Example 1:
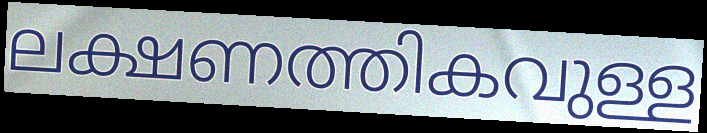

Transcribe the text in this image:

ലക്ഷണത്തികവുള്ള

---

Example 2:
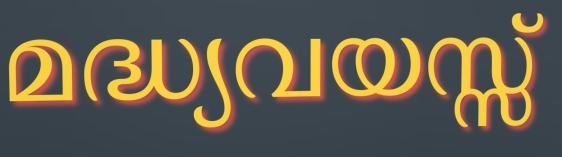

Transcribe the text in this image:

മദ്ധ്യവയസ്സ്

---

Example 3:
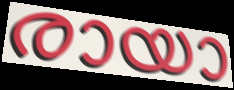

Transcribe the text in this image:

രായാ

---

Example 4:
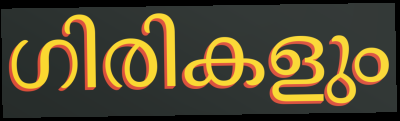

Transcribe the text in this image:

ഗിരികളും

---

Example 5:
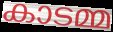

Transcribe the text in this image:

കാടമ്മ